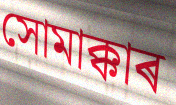
সোমাক্কাৰ